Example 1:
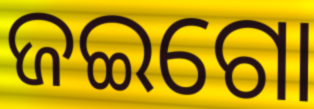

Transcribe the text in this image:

ଜଇଗୋ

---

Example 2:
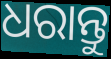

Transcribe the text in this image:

ଧରାନ୍ତୁ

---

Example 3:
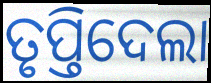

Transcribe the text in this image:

ତୃପ୍ତିଦେଲା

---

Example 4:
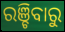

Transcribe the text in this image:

ରଞ୍ଚିବାରୁ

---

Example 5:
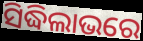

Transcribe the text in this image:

ସିଦ୍ଧିଲାଭରେ